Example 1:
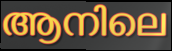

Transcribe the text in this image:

ആനിലെ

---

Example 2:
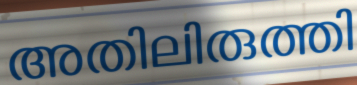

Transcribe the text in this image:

അതിലിരുത്തി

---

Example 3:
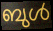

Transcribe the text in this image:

ബുൾ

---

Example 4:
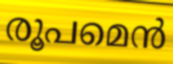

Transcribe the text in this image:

രൂപമെൻ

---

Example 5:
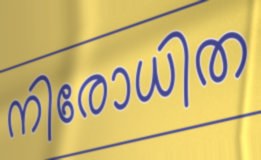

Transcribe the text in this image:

നിരോധിത